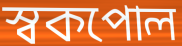
স্বকপোল